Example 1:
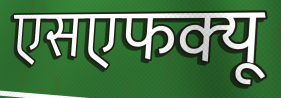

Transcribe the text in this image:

एसएफक्यू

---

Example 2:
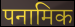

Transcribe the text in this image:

पनामिक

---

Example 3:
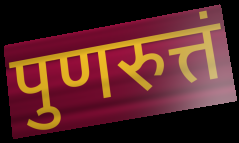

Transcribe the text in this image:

पुणरुत्तं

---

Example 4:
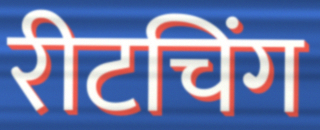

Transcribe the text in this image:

रीटचिंग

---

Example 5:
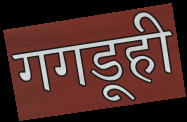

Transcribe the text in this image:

गगडूही